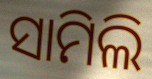
ସାମିଲି